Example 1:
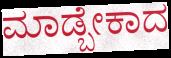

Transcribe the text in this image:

ಮಾಡ್ಬೇಕಾದ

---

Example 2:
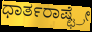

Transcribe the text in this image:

ಧಾರ್ತರಾಷ್ಟ್ರೇ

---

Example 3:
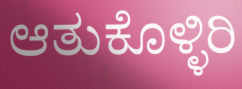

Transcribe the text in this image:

ಆತುಕೊಳ್ಳಿರಿ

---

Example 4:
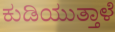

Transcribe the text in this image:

ಕುಡಿಯುತ್ತಾಳೆ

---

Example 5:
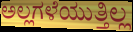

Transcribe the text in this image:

ಅಲ್ಲಗಳೆಯುತ್ತಿಲ್ಲ